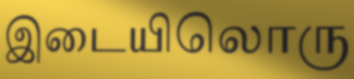
இடையிலொரு